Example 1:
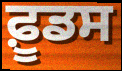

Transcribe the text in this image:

ਫ਼ੂਡਸ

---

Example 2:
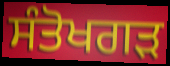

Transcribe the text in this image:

ਸੰਤੋਖਗੜ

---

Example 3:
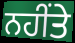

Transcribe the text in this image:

ਨਹੀਂਤੇ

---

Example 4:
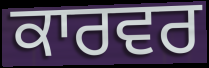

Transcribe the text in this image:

ਕਾਰਵਰ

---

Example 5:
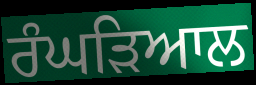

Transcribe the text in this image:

ਰੰਘੜਿਆਲ